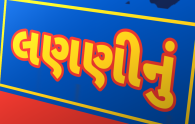
લણણીનું